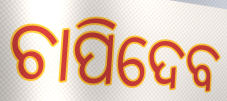
ଚାପିଦେବ